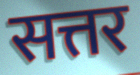
सत्तर